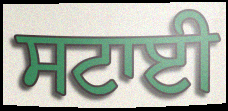
ਸਟਾਈ